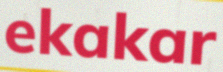
ekakar